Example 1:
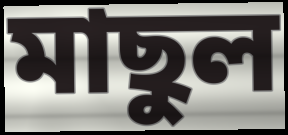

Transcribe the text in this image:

মাছুল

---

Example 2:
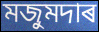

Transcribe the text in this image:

মজুমদাৰ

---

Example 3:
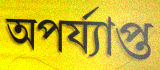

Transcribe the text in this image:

অপৰ্য্যাপ্ত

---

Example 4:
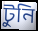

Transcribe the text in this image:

টুনি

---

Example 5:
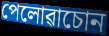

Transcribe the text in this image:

পেলোৱাচোন